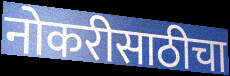
नोकरीसाठीचा